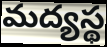
మద్యస్థ